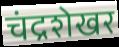
चंद्रशेखर